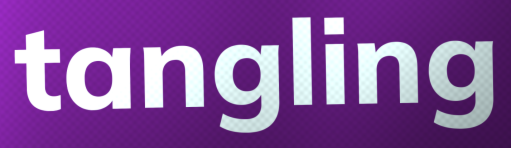
tangling